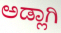
ಅಡ್ಲಾಗಿ